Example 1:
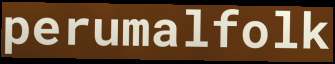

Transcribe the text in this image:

perumalfolk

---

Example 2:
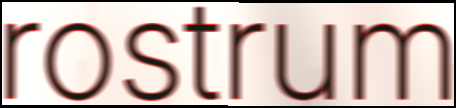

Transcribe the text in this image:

rostrum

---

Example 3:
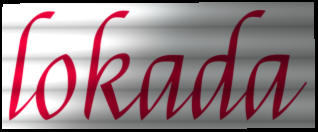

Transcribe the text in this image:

lokada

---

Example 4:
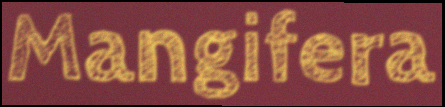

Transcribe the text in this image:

Mangifera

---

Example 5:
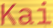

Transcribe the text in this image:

Kai